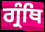
ਗ੍ਰੰਥਿ